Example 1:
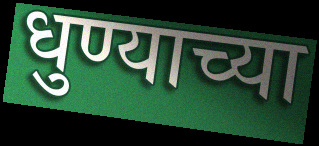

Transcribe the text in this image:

धुण्याच्या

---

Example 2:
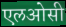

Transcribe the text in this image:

एलओसी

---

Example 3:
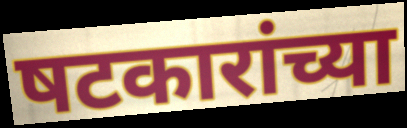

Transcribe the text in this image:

षटकारांच्या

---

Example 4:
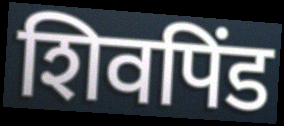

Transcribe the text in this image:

शिवपिंड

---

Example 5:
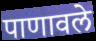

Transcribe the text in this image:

पाणावले